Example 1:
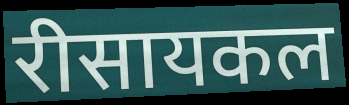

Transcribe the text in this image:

रीसायकल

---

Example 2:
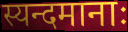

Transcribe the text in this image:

स्यन्दमानाः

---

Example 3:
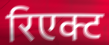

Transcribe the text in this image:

रिएक्ट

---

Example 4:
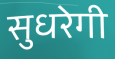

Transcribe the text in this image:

सुधरेगी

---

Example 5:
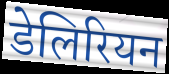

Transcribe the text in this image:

डेलिरियन